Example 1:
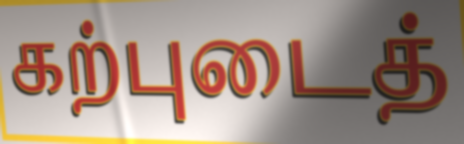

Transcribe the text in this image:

கற்புடைத்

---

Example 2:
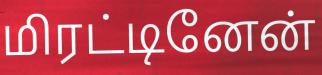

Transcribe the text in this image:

மிரட்டினேன்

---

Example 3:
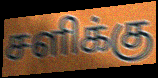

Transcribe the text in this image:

சளிக்கு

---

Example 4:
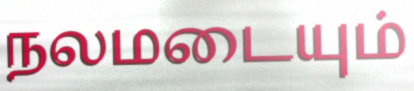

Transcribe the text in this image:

நலமடையும்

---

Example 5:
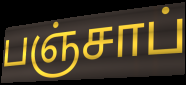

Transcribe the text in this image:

பஞ்சாப்